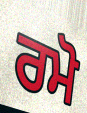
ਰਮੋ